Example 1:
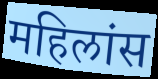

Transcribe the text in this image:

महिलांस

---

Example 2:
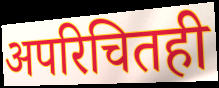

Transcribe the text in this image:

अपरिचितही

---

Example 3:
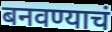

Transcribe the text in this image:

बनवण्याचं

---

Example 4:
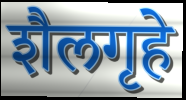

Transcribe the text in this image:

शैलगृहे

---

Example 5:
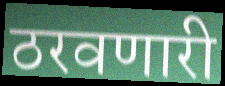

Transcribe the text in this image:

ठरवणारी